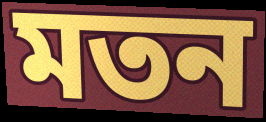
মতন